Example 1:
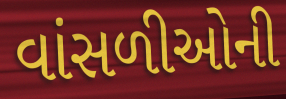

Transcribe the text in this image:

વાંસળીઓની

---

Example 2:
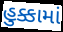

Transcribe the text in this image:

હુક્કામાં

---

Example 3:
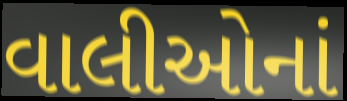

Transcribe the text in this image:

વાલીઓનાં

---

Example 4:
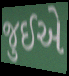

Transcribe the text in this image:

જુઈએ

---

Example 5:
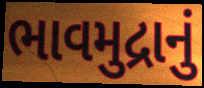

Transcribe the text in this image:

ભાવમુદ્રાનું